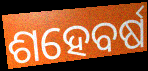
ଶହେବର୍ଷ